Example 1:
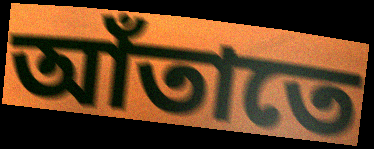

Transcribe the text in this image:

আঁতাতে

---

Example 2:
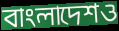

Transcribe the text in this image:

বাংলাদেশও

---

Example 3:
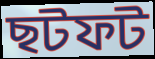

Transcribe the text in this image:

ছটফট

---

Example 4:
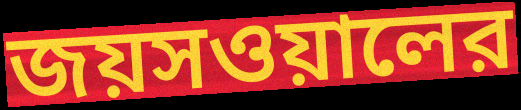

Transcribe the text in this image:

জয়সওয়ালের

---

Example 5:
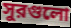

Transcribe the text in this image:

সুরগুলো